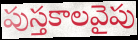
పుస్తకాలవైపు